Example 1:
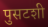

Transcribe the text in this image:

पुसटशी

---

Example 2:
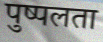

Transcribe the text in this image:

पुष्पलता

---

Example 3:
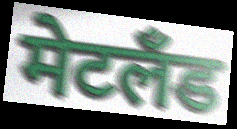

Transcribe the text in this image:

मेटलँड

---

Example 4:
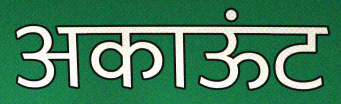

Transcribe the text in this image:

अकाऊंट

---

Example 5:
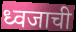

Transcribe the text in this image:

ध्वजाची